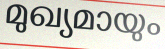
മുഖ്യമായും